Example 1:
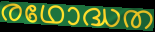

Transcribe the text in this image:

രഥോദ്ധത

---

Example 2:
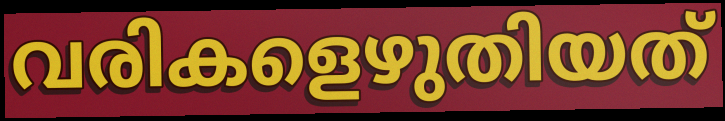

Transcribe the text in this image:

വരികളെഴുതിയത്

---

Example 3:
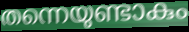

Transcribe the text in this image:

തന്നെയുണ്ടാകും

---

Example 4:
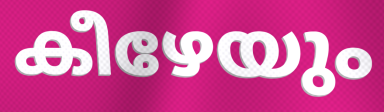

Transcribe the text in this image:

കീഴേയും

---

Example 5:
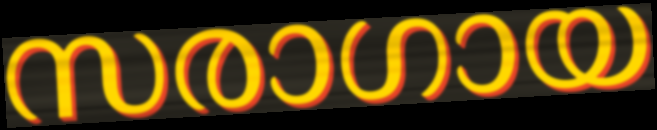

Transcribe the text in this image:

സരാഗായ